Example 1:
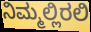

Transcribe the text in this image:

ನಿಮ್ಮಲ್ಲಿರಲಿ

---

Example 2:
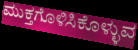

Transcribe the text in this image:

ಮುಕ್ತಗೊಳಿಸಿಕೊಳ್ಳುವ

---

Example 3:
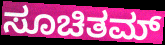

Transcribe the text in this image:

ಸೂಚಿತಮ್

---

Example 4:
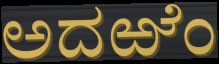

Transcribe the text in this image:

ಅದಱೆಂ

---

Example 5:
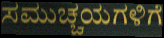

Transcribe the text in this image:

ಸಮುಚ್ಚಯಗಳಿಗೆ